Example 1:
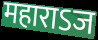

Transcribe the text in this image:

महाराऽज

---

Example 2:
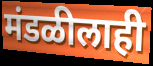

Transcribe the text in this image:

मंडळीलाही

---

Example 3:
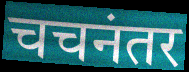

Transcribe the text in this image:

चचनंतर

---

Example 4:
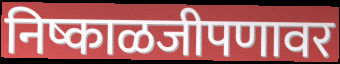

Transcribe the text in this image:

निष्काळजीपणावर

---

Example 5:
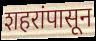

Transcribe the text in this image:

शहरांपासून